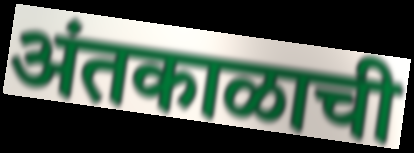
अंतकाळाची